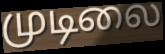
முடிலை